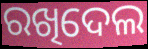
ରଖିଦେଲ